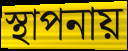
স্থাপনায়